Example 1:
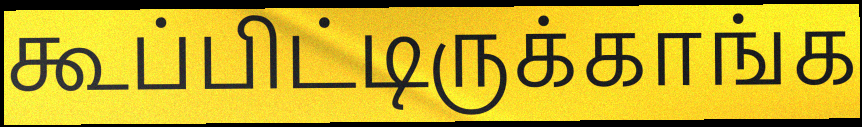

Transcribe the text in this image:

கூப்பிட்டிருக்காங்க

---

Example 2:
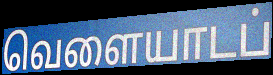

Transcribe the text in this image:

வெளையாடப்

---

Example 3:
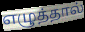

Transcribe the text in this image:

எழுத்தால்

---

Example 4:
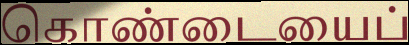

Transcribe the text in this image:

கொண்டையைப்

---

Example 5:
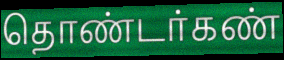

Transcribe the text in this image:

தொண்டர்கண்